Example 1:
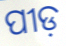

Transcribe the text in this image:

ପୀଡ଼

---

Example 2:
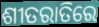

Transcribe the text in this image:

ଶୀତରାତିରେ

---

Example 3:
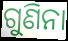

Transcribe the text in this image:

ଗୁଣିନା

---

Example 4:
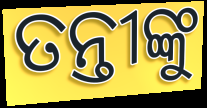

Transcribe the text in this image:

ତନ୍ତୀଙ୍କୁ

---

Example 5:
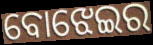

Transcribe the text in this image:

ବୋଝେଇର